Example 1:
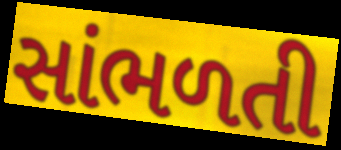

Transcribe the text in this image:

સાંભળતી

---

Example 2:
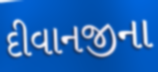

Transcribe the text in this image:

દીવાનજીના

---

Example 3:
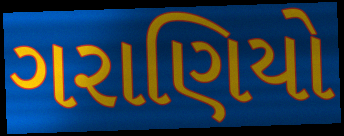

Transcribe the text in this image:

ગરાણિયો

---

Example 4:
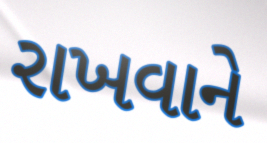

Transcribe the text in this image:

રાખવાને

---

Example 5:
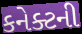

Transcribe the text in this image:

કનેક્ટની